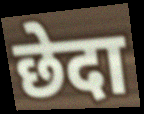
छेदा